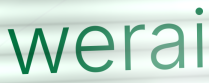
werai